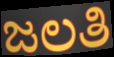
ಜಲತಿ